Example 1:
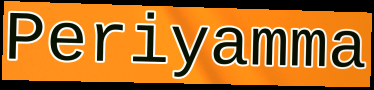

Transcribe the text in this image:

Periyamma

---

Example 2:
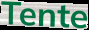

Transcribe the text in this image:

Tente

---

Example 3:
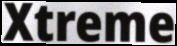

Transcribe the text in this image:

Xtreme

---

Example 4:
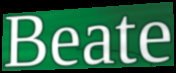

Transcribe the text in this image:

Beate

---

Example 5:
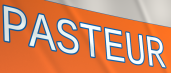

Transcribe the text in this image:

PASTEUR